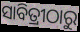
ସାବିତ୍ରୀଠାରୁ